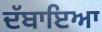
ਦੱਬਾਇਆ